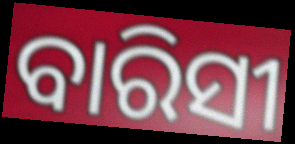
ବାରିସୀ